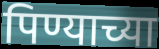
पिण्याच्या